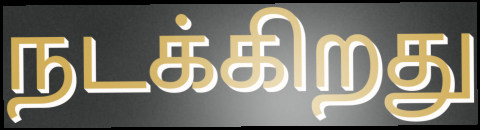
நடக்கிறது